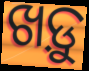
ଖଡ଼ୁ